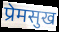
प्रेमसुख